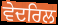
ਵੇਦਰਿਲ